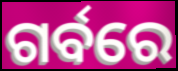
ଗର୍ବରେ